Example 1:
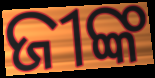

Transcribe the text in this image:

ଜୀଙ୍କ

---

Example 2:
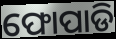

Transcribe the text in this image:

ଫୋପାଡି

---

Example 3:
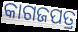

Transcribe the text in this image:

କାଗଜପତ୍ର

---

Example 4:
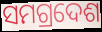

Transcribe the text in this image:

ସମଗ୍ରଦେଶ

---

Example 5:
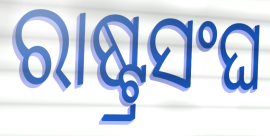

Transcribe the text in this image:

ରାଷ୍ଟ୍ରସଂଘ